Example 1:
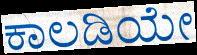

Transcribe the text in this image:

ಕಾಲಡಿಯೇ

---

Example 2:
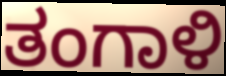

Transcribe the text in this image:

ತಂಗಾಳಿ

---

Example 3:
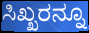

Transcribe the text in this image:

ಸಿಖ್ಖರನ್ನೂ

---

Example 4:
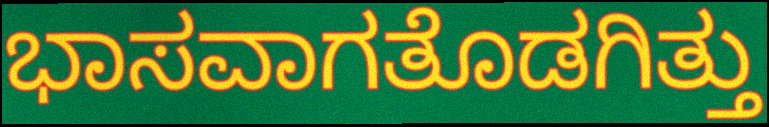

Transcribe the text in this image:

ಭಾಸವಾಗತೊಡಗಿತ್ತು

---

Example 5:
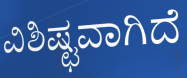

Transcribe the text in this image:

ವಿಶಿಷ್ಟವಾಗಿದೆ